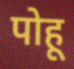
पोहू